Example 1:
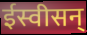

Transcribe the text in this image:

ईस्वीसन्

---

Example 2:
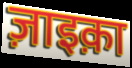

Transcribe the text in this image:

ज़ाइक़ा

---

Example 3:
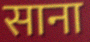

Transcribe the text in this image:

साना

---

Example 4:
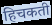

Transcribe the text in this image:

हिचकती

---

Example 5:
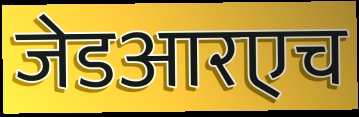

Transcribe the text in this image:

जेडआरएच